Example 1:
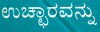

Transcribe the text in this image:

ಉಚ್ಛಾರವನ್ನು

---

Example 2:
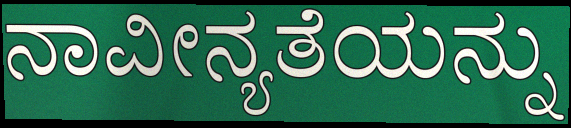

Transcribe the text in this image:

ನಾವೀನ್ಯತೆಯನ್ನು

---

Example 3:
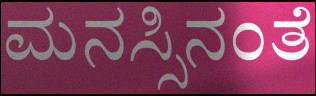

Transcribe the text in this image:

ಮನಸ್ಸಿನಂತೆ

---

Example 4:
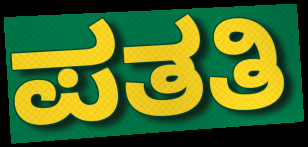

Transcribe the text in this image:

ಪತತಿ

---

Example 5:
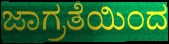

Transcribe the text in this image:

ಜಾಗ್ರತೆಯಿಂದ